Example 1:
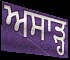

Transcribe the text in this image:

ਅਸਾੜ੍ਹ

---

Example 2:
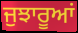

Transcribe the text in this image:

ਜੁਝਾਰੂਆਂ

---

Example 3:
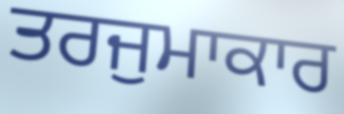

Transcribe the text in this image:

ਤਰਜੁਮਾਕਾਰ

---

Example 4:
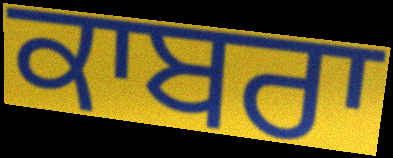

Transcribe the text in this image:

ਕਾਬਰਾ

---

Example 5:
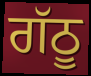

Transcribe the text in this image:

ਗੱਠੂ